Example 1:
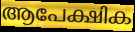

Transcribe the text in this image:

ആപേക്ഷിക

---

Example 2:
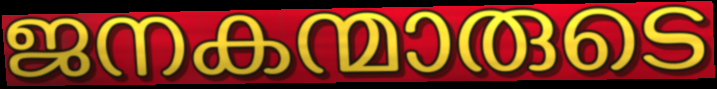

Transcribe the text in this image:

ജനകന്മാരുടെ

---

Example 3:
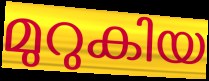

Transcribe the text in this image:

മുറുകിയ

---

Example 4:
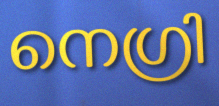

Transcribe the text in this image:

നെഗ്രി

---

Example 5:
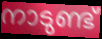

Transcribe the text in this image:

നാടുണ്ട്